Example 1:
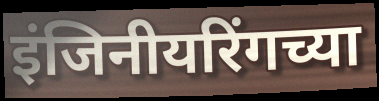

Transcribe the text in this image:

इंजिनीयरिंगच्या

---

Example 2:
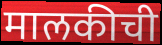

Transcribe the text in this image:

मालकीची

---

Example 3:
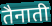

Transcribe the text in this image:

तैनाती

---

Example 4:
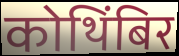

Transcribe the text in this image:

कोथिंबिर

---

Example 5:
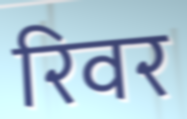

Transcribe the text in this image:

रिवर